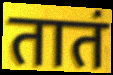
तातं